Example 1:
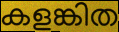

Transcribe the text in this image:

കളങ്കിത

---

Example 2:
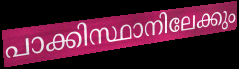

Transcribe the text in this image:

പാക്കിസ്ഥാനിലേക്കും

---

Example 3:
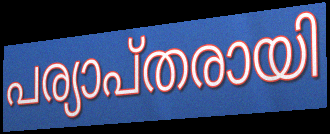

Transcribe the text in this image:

പര്യാപ്തരായി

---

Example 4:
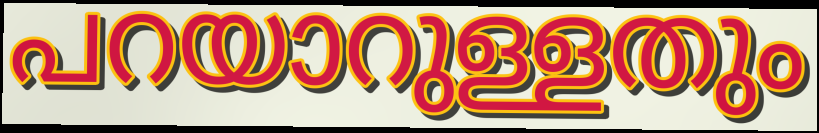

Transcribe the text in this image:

പറയാറുള്ളതും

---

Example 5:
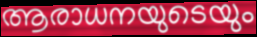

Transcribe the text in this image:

ആരാധനയുടെയും